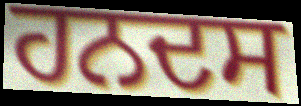
ਹਨਦਸ